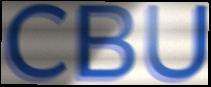
CBU